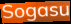
Sogasu